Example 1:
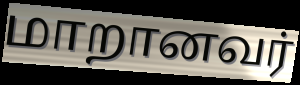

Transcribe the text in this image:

மாறானவர்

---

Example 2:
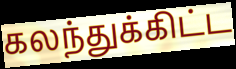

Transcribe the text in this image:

கலந்துக்கிட்ட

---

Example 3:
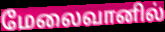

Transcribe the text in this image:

மேலைவானில்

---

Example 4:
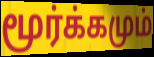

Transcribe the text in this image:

மூர்க்கமும்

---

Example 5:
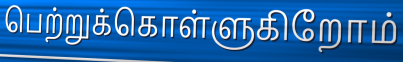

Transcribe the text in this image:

பெற்றுக்கொள்ளுகிறோம்